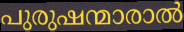
പുരുഷന്മാരാൽ